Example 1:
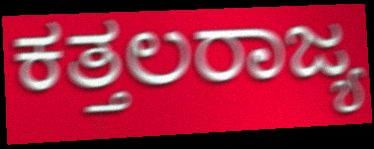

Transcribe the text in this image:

ಕತ್ತಲರಾಜ್ಯ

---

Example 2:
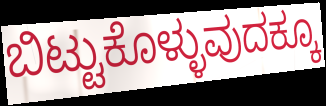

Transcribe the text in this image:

ಬಿಟ್ಟುಕೊಳ್ಳುವುದಕ್ಕೂ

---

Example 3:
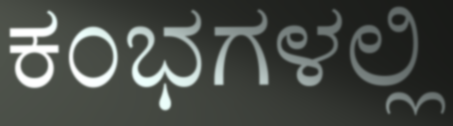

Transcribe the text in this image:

ಕಂಭಗಳಲ್ಲಿ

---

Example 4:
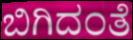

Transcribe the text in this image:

ಬಿಗಿದಂತೆ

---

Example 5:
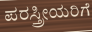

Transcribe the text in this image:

ಪರಸ್ತ್ರೀಯರಿಗೆ